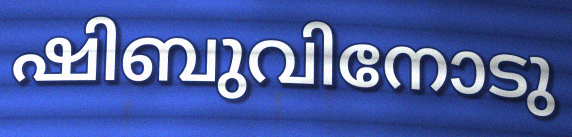
ഷിബുവിനോടു